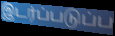
இடர்ப்படுப்ப